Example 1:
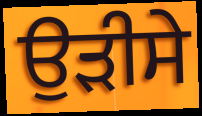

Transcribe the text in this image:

ਉੜੀਸੇ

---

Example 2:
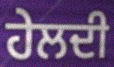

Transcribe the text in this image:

ਹੇਲਦੀ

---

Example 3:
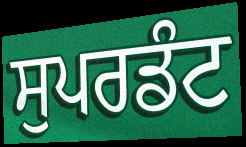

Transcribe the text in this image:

ਸੁਪਰਡੰਟ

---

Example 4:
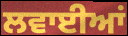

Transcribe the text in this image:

ਲਵਾਈਆਂ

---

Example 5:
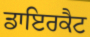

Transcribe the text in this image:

ਡਾਇਰਕੈਟ